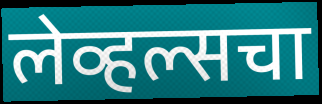
लेव्हल्सचा